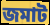
জমাট